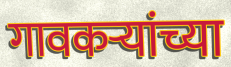
गावकऱ्यांच्या